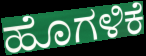
ಹೊಗಳಿಕೆ